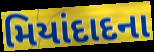
મિયાંદાદના